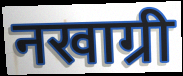
नखाग्री